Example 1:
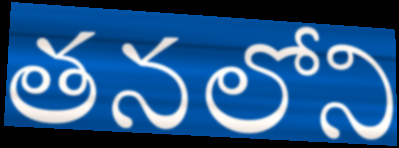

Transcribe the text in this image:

తనలోని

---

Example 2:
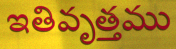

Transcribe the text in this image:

ఇతివృత్తము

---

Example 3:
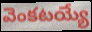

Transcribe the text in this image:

వెంకటయ్యే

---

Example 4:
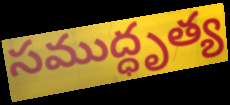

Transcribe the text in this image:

సముద్ధృత్య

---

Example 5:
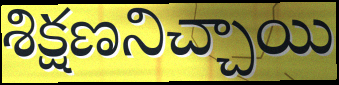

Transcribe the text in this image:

శిక్షణనిచ్చాయి